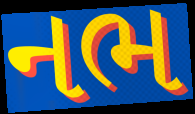
નભ